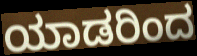
ಯಾಡರಿಂದ